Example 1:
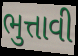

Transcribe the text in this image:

ભુત્તાવી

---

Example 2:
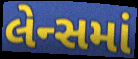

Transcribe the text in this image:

લેન્સમાં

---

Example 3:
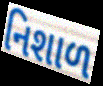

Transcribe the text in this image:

નિશાળ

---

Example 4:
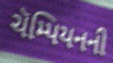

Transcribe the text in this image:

ચૅમ્પિયનની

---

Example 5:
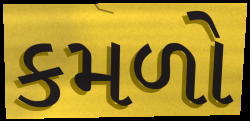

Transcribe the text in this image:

કમળો